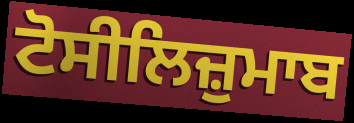
ਟੋਸੀਲਿਜ਼ੁਮਾਬ